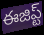
ఈజిప్ట్